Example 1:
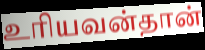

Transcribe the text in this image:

உரியவன்தான்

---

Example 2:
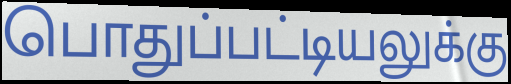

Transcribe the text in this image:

பொதுப்பட்டியலுக்கு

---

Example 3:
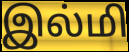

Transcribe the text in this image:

இல்மி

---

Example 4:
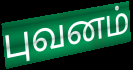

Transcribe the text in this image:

புவனம்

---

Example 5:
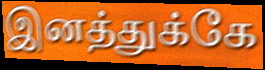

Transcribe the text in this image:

இனத்துக்கே